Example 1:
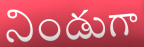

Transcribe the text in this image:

నిండుగా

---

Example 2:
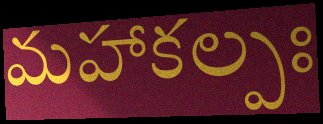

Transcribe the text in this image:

మహాకల్పః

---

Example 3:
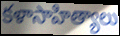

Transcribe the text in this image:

కళాసాహిత్యాలు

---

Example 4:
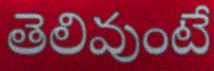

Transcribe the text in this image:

తెలివుంటే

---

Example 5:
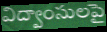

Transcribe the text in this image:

విద్వాంసులపై